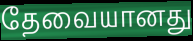
தேவையானது